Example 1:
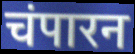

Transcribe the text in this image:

चंपारन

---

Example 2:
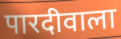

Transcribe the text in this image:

पारदीवाला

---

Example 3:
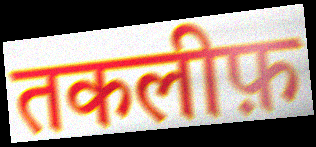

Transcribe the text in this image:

तकलीफ़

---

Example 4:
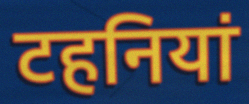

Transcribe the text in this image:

टहनियां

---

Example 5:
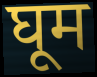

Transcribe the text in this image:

घूम